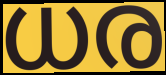
ധര